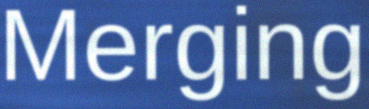
Merging